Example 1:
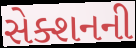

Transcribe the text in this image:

સેક્શનની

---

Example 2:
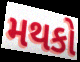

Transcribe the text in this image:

મથકો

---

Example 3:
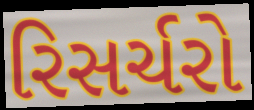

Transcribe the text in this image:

રિસર્ચરો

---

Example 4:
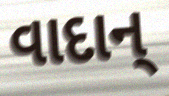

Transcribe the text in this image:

વાદાન્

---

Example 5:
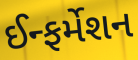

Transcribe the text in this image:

ઈન્ફર્મેશન